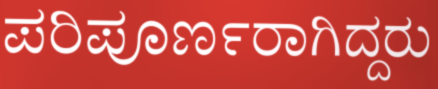
ಪರಿಪೂರ್ಣರಾಗಿದ್ದರು